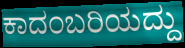
ಕಾದಂಬರಿಯದ್ದು